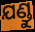
ଯଣ୍ଡୁ